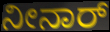
ನೀನಾರ್